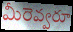
మీరెవ్వరూ